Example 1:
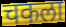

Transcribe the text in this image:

चकला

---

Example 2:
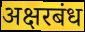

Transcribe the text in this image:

अक्षरबंध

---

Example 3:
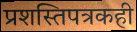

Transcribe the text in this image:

प्रशस्तिपत्रकही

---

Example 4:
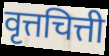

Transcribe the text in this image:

वृत्तचित्ती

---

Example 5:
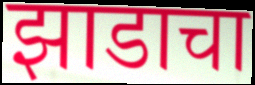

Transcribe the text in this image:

झाडाचा